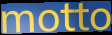
motto